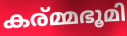
കര്മ്മഭൂമി